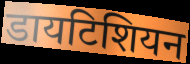
डायटिशियन